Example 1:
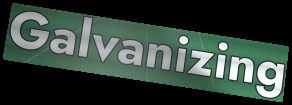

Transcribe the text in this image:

Galvanizing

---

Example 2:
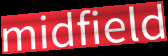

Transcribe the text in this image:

midfield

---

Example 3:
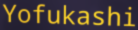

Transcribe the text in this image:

Yofukashi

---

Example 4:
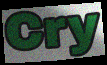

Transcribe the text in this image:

Cry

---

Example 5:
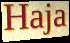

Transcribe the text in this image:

Haja